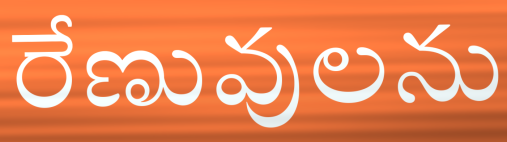
రేణువులను